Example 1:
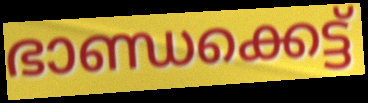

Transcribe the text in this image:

ഭാണ്ഡക്കെട്ട്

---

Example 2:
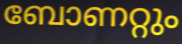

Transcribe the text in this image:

ബോണറ്റും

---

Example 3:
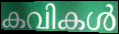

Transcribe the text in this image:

കവികൾ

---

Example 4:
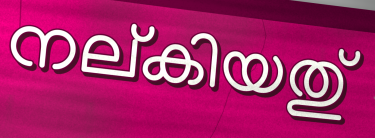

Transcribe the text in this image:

നല്കിയതു്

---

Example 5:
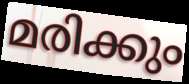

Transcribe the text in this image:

മരിക്കും